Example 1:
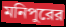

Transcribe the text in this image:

মনিপুরের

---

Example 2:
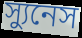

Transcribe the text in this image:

স্যুনেস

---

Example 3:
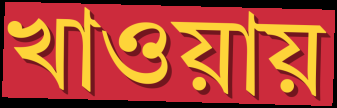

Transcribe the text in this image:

খাওয়ায়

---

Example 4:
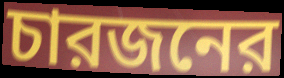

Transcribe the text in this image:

চারজনের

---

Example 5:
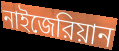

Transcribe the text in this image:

নাইজেরিয়ান